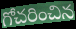
గోచరించిన